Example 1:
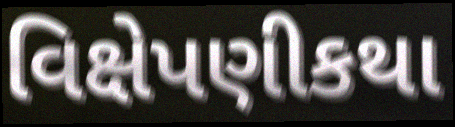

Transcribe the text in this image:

વિક્ષેપણીકથા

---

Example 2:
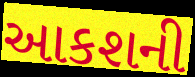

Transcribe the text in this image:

આકશની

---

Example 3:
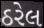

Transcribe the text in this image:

ઠરેલ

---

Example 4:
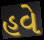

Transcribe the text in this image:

હવે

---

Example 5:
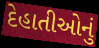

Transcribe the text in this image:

દેહાતીઓનું